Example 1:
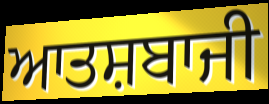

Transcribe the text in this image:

ਆਤਸ਼ਬਾਜੀ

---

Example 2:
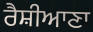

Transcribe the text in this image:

ਰੈਸ਼ੀਆਣਾ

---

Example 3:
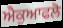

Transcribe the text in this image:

ਐਕੁਆਫਲੋ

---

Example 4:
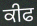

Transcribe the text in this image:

ਕੀਫ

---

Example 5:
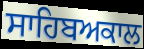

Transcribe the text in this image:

ਸਾਹਿਬਅਕਾਲ